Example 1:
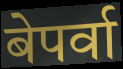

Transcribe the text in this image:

बेपर्वा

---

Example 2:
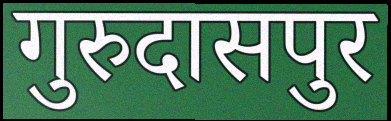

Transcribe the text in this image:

गुरुदासपुर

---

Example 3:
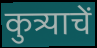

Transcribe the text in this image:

कुत्र्याचें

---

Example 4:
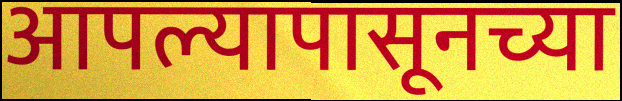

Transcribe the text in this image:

आपल्यापासूनच्या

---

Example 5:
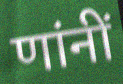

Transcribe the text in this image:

णांनीं